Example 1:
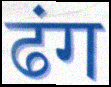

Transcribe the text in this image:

ढंग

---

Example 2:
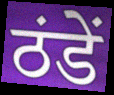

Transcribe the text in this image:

ठंडें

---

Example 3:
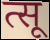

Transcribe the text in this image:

त्सू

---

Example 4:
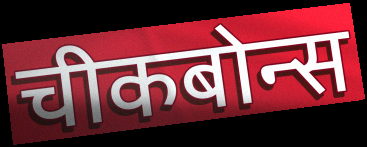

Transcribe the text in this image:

चीकबोन्स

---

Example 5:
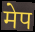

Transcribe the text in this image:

मेप